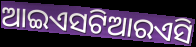
ଆଇଏସଟିଆରଏସି